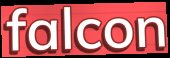
falcon